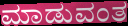
ಮಾಡುವಂತ